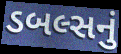
ડબલ્સનું